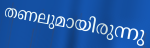
തണലുമായിരുന്നു